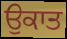
ਉਕਾਤ